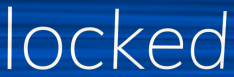
locked